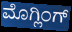
ಮೊಗ್ಲಿಂಗ್